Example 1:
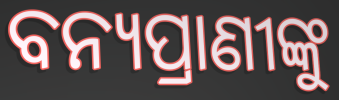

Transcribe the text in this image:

ବନ୍ୟପ୍ରାଣୀଙ୍କୁ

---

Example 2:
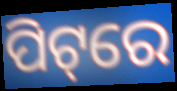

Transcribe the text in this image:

ପିଟ୍‌ରେ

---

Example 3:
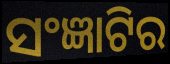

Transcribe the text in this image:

ସଂଜ୍ଞାଟିର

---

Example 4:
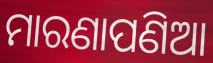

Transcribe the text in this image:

ମାରଣାପଣିଆ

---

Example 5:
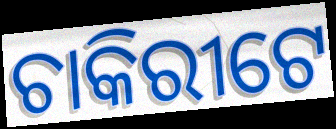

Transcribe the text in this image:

ଚାକିରୀଟେ